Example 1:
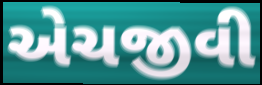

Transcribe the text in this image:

એચજીવી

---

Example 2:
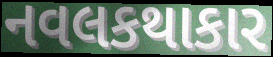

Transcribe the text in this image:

નવલકથાકાર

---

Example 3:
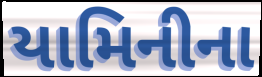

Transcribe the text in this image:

યામિનીના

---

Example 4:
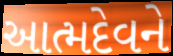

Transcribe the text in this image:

આત્મદેવને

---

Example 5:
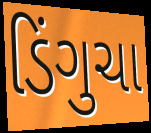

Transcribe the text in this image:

ડિંગુચા